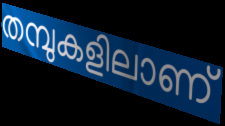
തമ്പുകളിലാണ്